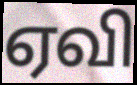
ஏவி